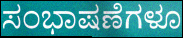
ಸಂಭಾಷಣೆಗಳೂ